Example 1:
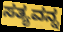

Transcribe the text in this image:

ಸತ್ಯವನ್ನ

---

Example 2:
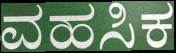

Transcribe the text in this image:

ವಹಸಿಕ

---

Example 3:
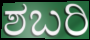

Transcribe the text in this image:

ಶಬರಿ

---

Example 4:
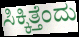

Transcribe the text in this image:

ಸಿಕ್ಕಿತ್ತೆಂದು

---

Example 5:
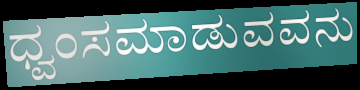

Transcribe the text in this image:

ಧ್ವಂಸಮಾಡುವವನು